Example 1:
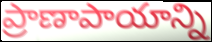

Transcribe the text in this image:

ప్రాణాపాయాన్ని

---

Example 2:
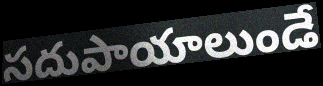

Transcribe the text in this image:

సదుపాయాలుండే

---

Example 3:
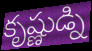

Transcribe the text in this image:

కృష్ణుడ్ని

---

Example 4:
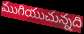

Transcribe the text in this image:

ముగియుచున్నది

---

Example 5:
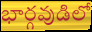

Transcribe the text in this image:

భార్గవుడిలో